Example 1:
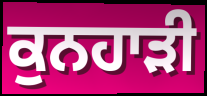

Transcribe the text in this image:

ਕੁਨਹਾੜੀ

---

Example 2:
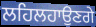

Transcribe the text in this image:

ਲਹਿਲਹਾਉਣਗੇ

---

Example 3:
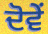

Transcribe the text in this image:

ਦੋਵੇੰ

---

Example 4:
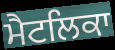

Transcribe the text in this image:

ਮੈਟਲਿਕਾ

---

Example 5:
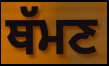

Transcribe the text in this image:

ਥੱਮਣ